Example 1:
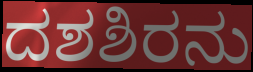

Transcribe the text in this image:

ದಶಶಿರನು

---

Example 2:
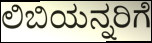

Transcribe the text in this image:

ಲಿಬಿಯನ್ನರಿಗೆ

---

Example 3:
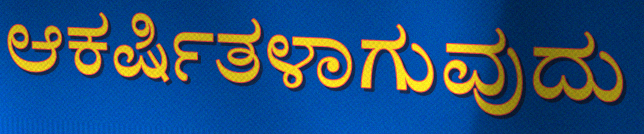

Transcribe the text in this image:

ಆಕರ್ಷಿತಳಾಗುವುದು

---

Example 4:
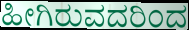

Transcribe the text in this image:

ಹೀಗಿರುವದರಿಂದ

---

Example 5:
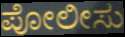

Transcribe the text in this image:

ಪೋಲೀಸು